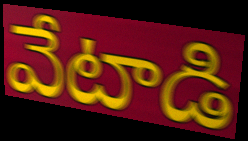
వేటాడి